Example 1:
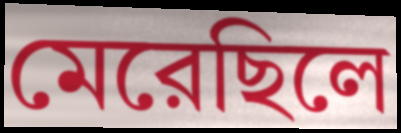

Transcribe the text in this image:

মেরেছিলে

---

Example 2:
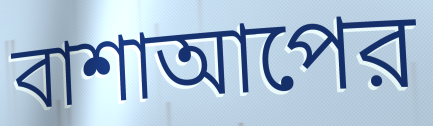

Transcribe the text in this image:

বাশাআপের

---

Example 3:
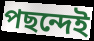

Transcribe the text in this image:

পছন্দেই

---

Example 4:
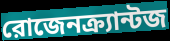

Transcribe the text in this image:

রোজেনক্র্যান্টজ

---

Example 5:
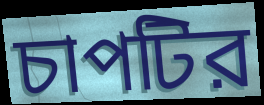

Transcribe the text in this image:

চাপটির